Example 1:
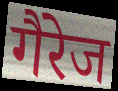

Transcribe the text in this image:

गैरेज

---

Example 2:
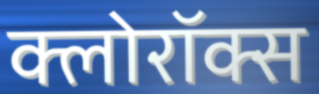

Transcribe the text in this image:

क्लोरॉक्स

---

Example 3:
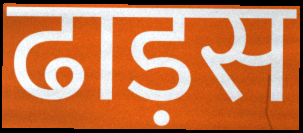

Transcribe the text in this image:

ढाड़स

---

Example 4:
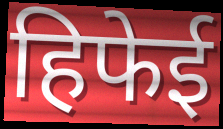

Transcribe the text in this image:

हिफेई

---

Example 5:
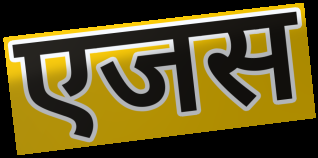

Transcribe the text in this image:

एजस